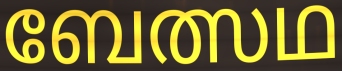
ബേത്സഥ